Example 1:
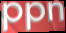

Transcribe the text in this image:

ppn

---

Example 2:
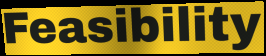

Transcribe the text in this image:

Feasibility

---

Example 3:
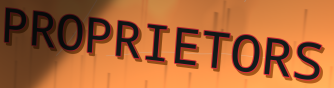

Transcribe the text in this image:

PROPRIETORS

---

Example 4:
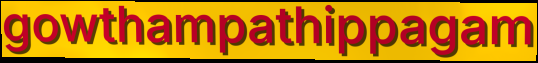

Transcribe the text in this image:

gowthampathippagam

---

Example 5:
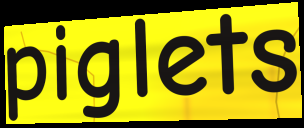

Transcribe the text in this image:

piglets